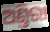
ଅଣ୍ତିରା